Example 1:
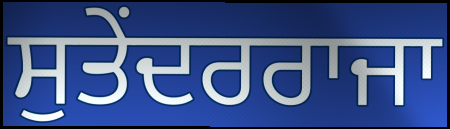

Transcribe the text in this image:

ਸੁਤੇਂਦਰਰਾਜਾ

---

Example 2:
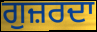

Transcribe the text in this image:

ਗੁਜ਼ਰਦਾ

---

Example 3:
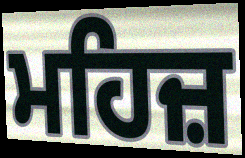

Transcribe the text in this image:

ਮਹਿਜ਼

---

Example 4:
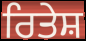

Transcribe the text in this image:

ਰਿਤੇਸ਼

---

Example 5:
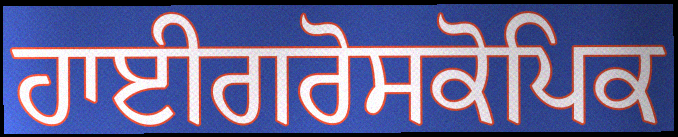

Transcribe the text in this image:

ਹਾਈਗਰੋਸਕੋਪਿਕ